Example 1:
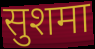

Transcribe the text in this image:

सुशमा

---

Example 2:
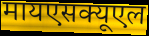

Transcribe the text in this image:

मायएसक्यूएल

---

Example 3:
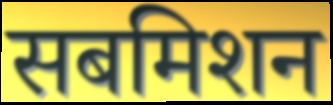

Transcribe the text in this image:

सबमिशन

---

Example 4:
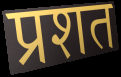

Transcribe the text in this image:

प्रशत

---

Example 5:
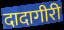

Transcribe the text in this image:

दादागीरी